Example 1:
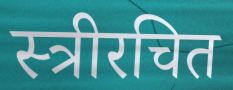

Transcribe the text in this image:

स्त्रीरचित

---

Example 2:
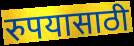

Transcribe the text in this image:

रुपयासाठी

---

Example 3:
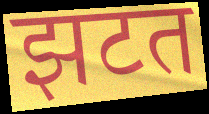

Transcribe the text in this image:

झटत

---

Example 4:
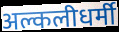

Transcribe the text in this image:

अल्कलीधर्मी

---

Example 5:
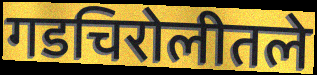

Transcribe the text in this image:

गडचिरोलीतले